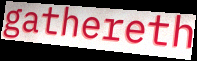
gathereth